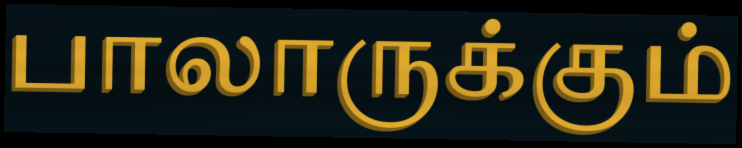
பாலாருக்கும்